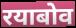
रयाबोव